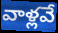
వాళ్లవే